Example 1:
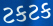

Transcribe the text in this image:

ટકટક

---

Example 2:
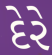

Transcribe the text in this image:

દેરે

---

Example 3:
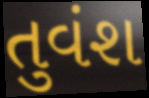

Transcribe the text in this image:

તુવંશ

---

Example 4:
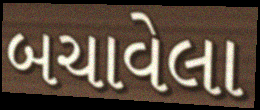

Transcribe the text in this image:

બચાવેલા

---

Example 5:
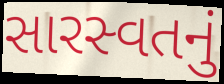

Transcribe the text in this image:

સારસ્વતનું